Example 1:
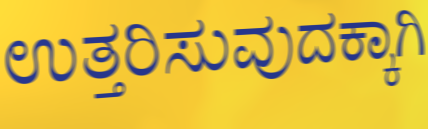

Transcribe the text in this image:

ಉತ್ತರಿಸುವುದಕ್ಕಾಗಿ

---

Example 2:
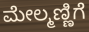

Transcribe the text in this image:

ಮೇಲ್ಮಣ್ಣಿಗೆ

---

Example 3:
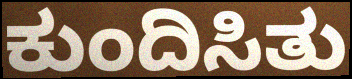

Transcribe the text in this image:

ಕುಂದಿಸಿತು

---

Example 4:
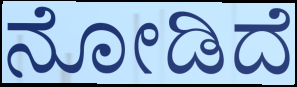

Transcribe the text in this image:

ನೋಡಿದೆ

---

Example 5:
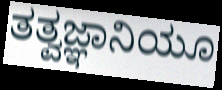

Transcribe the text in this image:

ತತ್ವಜ್ಞಾನಿಯೂ